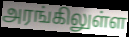
அரங்கிலுள்ள